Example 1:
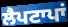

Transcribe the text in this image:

ਲੈਪਟਾਪਾਂ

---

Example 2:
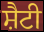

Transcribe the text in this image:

ਸ਼ੈਟੀ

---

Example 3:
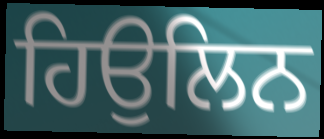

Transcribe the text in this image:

ਹਿਉਲਿਨ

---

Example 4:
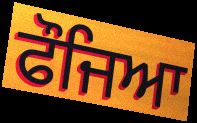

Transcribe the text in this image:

ਫੌਜਿਆ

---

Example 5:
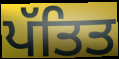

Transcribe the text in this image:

ਪੱਤਿਤ